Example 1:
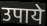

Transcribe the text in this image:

उपाये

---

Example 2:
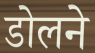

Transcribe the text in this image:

डोलने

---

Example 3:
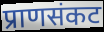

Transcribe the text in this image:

प्राणसंकट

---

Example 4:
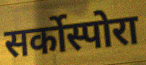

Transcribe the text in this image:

सर्कोस्पोरा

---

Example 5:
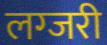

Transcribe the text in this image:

लग्‍जरी